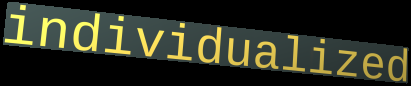
individualized